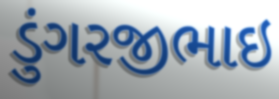
ડુંગરજીભાઇ